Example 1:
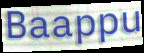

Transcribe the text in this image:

Baappu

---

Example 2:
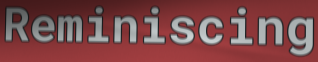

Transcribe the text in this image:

Reminiscing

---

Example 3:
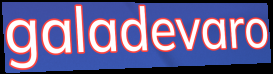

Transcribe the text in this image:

galadevaro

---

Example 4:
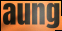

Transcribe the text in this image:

aung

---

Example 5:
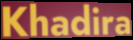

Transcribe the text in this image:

Khadira